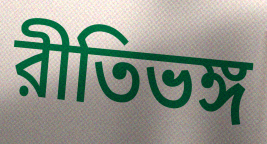
রীতিভঙ্গ